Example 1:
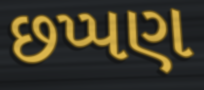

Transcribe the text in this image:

છપ્પણ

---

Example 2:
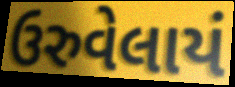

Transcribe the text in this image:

ઉરુવેલાયં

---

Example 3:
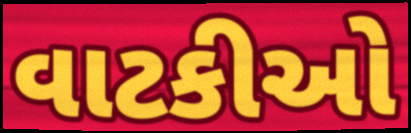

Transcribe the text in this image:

વાટકીઓ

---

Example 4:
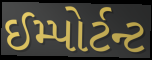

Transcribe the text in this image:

ઈમ્પોર્ટન્ટ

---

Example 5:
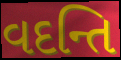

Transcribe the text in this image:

વદન્તિ